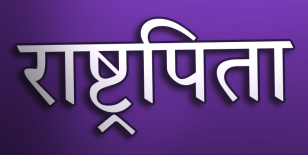
राष्ट्रपिता